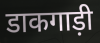
डाकगाड़ी